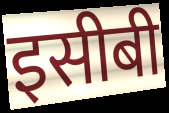
इसीबी